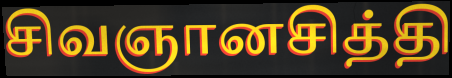
சிவஞானசித்தி